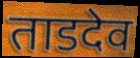
ताडदेव